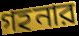
গহনার